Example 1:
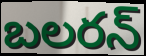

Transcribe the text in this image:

బలరన్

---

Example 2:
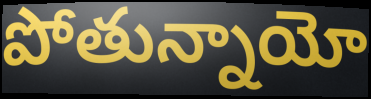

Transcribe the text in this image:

పోతున్నాయో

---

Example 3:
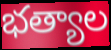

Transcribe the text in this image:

భత్యాల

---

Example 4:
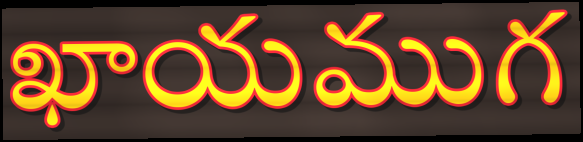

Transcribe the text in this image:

ఖాయముగ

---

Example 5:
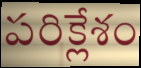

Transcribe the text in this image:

పరిక్లేశం